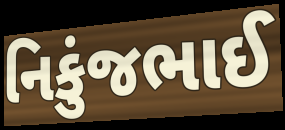
નિકુંજભાઈ